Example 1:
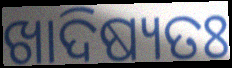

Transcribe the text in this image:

ଖାଦିଷ୍ଯତଃ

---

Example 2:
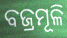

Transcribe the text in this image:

ବଜ୍ରମୂଳି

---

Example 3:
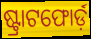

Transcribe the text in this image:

ଷ୍ଟ୍ରାଟଫୋର୍ଡ଼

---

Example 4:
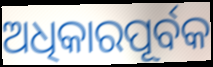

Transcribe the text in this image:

ଅଧିକାରପୂର୍ବକ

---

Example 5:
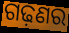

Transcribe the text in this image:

ଗଢ଼ଣର